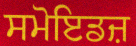
ਸਮੋਇਡਜ਼